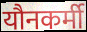
यौनकर्मी